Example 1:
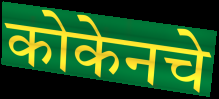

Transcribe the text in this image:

कोकेनचे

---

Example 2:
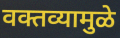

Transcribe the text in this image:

वक्तव्यामुळे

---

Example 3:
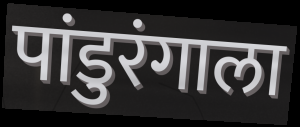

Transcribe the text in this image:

पांडुरंगाला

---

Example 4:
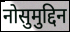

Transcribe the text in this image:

नोसुमुद्दिन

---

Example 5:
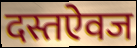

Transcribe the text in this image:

दस्तऐवज